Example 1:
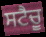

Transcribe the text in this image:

ਸਟੈਚੂ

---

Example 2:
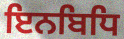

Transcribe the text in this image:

ਇਨਬਿਧਿ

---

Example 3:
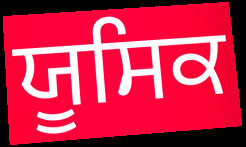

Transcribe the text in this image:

ਯੂਸਿਕ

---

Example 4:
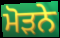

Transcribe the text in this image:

ਮੋੜਨੇ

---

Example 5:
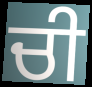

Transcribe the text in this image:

ਚੀ